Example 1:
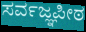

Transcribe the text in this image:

ಸರ್ವಜ್ಞಪೀಠ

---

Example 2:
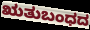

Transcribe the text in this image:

ಋತುಬಂಧದ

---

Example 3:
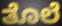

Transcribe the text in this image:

ತೊಲೆ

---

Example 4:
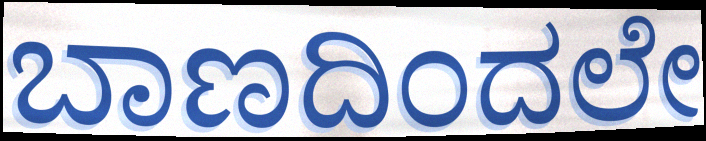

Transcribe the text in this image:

ಬಾಣದಿಂದಲೇ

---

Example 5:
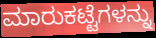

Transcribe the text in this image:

ಮಾರುಕಟ್ಟೆಗಳನ್ನು